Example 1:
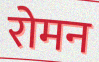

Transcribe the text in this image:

रोमन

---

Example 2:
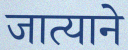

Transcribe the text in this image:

जात्याने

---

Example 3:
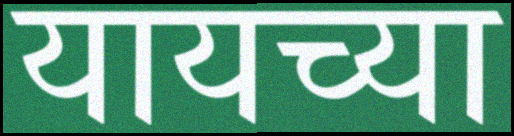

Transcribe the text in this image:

यायच्या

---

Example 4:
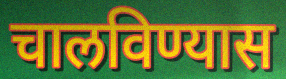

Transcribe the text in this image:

चालविण्यास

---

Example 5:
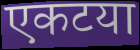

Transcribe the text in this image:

एकटया